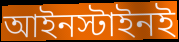
আইনস্টাইনই